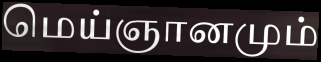
மெய்ஞானமும்